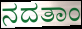
ನದತಾಂ